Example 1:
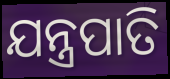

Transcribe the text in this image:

ଯନ୍ତ୍ରପାତି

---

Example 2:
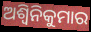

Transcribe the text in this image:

ଅଶ୍ୱିନିକୁମାର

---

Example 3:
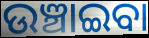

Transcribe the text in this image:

ଉଞ୍ଚାଇବା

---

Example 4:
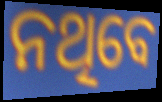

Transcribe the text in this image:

ନଥିବେ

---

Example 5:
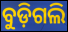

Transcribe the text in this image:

ବୁଡ଼ିଗଲି